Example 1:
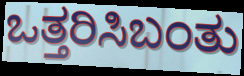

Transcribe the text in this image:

ಒತ್ತರಿಸಿಬಂತು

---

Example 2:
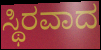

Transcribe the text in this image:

ಸ್ಥಿರವಾದ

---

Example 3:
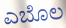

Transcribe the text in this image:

ಎಬೊಲ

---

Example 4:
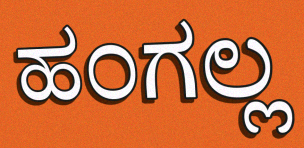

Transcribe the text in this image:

ಹಂಗಲ್ಲ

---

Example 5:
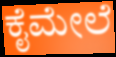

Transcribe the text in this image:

ಕೈಮೇಲೆ